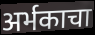
अर्भकाचा